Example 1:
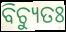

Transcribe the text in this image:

ବିଚ୍ୟୁତଃ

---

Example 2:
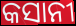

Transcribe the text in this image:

କସାନୀ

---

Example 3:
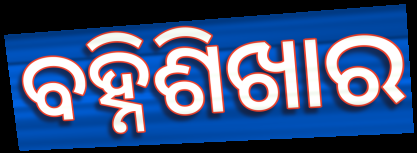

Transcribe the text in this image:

ବହ୍ନିଶିଖାର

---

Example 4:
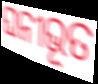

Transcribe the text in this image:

ଘନୀଭୂତ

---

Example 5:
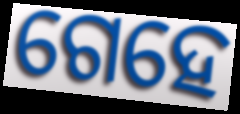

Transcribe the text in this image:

ଗେହେ